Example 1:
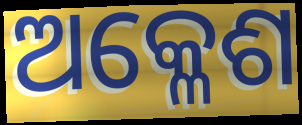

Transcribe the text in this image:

ଅକ୍ଳେଶ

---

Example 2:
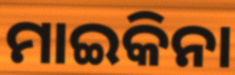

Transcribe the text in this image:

ମାଇକିନା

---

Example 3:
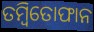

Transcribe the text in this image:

ତମ୍ବିତୋଫାନ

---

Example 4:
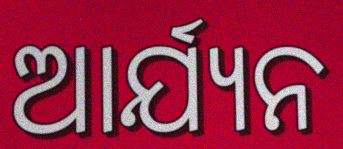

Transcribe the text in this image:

ଆର୍ଯ୍ୟନ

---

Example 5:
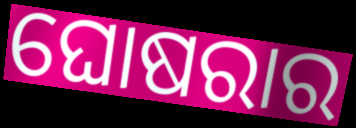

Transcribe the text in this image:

ଘୋଷରାର